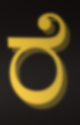
ರೆ